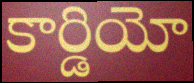
కార్డియో